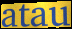
atau